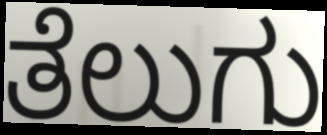
ತೆಲುಗು